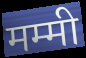
मम्मी